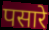
पसारे